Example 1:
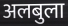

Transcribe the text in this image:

अलबुला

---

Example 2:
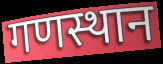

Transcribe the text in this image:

गणस्थान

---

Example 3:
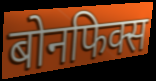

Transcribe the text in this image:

बोनफिक्स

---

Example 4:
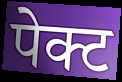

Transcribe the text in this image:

पेक्ट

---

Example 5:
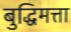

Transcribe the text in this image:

बुद्धिमत्ता